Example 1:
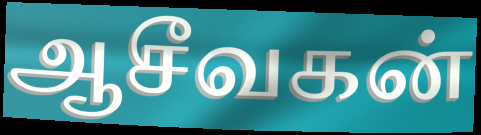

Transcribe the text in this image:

ஆசீவகன்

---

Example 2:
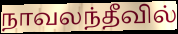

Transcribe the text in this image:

நாவலந்தீவில்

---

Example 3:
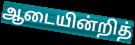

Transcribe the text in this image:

ஆடையின்றித்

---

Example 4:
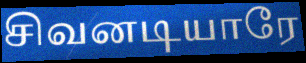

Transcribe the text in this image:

சிவனடியாரே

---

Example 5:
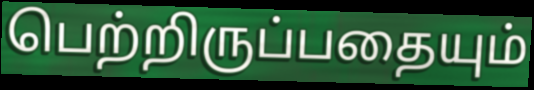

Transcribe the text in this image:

பெற்றிருப்பதையும்